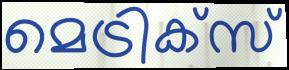
മെട്രിക്സ്